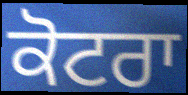
ਕੋਟਰਾ